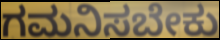
ಗಮನಿಸಬೇಕು